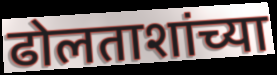
ढोलताशांच्या